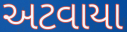
અટવાયા